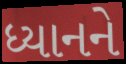
ધ્યાનને